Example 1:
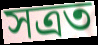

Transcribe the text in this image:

সত্ৰত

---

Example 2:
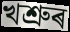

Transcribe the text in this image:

খশ্ৰুৰ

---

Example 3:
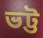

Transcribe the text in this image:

ভট্ট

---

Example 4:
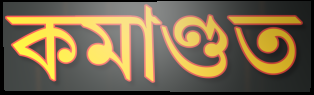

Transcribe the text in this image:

কমাণ্ডত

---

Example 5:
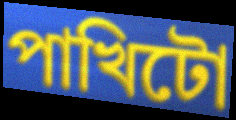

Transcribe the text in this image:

পাখিটো